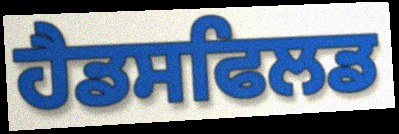
ਹੈਡਸਫਿਲਡ